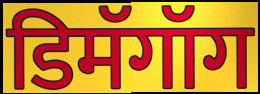
डिमॅगॉग